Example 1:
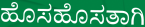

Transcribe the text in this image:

ಹೊಸಹೊಸತಾಗಿ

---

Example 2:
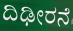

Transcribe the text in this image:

ದಿಢೀರನೆ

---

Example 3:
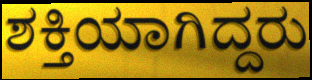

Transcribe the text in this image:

ಶಕ್ತಿಯಾಗಿದ್ದರು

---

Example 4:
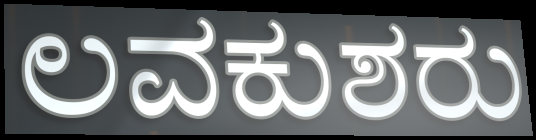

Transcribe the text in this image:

ಲವಕುಶರು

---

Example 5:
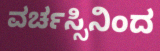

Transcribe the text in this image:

ವರ್ಚಸ್ಸಿನಿಂದ